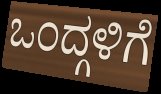
ಒಂದ್ಗಳಿಗೆ